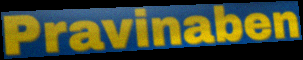
Pravinaben